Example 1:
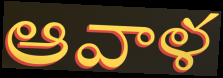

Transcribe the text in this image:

ఆవాళ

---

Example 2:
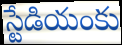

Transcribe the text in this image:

స్టేడియంకు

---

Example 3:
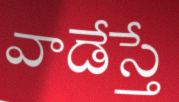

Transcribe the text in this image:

వాడేస్తే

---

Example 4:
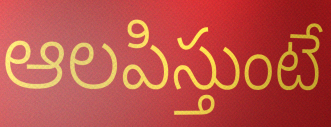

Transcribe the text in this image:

ఆలపిస్తుంటే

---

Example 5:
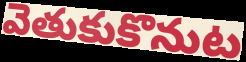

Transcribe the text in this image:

వెతుకుకొనుట